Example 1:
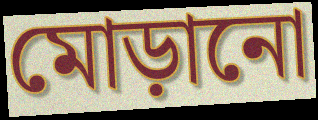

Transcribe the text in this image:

মোড়ানো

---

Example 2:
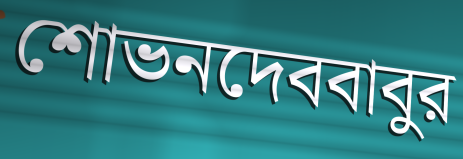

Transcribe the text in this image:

শোভনদেববাবুর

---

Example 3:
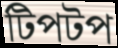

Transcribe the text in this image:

টিপটপ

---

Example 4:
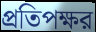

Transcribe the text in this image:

প্রতিপক্ষর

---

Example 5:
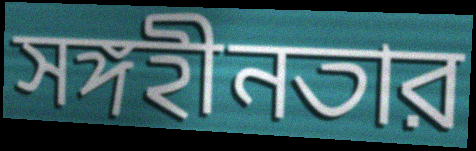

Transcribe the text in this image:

সঙ্গহীনতার